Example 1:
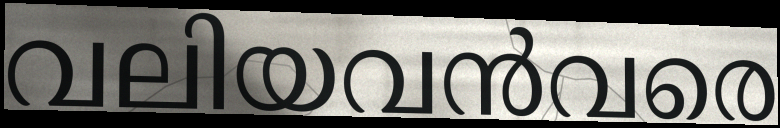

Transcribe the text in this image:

വലിയവൻവരെ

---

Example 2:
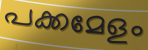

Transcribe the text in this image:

പക്കമേളം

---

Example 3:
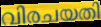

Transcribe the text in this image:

വിരചയതി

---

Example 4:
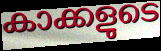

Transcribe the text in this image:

കാക്കളുടെ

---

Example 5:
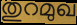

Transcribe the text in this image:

തുറമുഖ